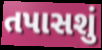
તપાસશું